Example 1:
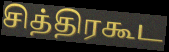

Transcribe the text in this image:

சித்திரகூட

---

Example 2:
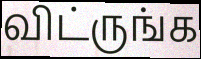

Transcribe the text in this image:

விட்ருங்க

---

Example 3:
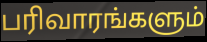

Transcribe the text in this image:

பரிவாரங்களும்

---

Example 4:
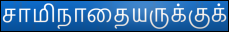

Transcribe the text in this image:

சாமிநாதையருக்குக்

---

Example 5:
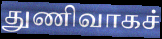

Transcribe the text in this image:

துணிவாகச்